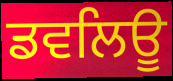
ਡਵਲਿਊ